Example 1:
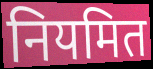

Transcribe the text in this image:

नियमित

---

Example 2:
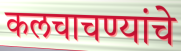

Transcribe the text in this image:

कलचाचण्यांचे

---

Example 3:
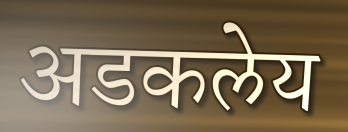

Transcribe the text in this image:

अडकलेय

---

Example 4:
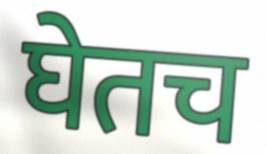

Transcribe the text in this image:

घेतच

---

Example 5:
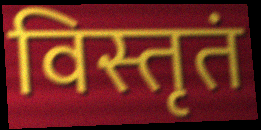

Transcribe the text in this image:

विस्तृतं